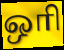
ஒரி